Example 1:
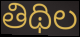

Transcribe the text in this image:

తిథిల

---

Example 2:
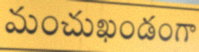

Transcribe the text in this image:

మంచుఖండంగా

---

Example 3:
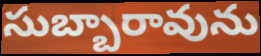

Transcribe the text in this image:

సుబ్బారావును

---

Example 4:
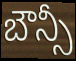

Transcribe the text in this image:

బౌన్సీ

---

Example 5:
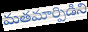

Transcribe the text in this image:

మతమార్పిడిని